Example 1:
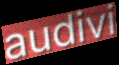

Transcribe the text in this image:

audivi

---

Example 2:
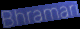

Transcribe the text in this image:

Bhramari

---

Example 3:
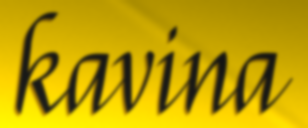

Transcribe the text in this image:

kavina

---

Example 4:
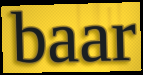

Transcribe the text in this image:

baar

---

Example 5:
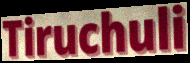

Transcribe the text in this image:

Tiruchuli